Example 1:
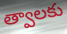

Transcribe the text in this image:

త్వాలకు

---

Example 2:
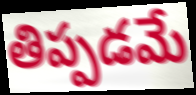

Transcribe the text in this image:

తిప్పడమే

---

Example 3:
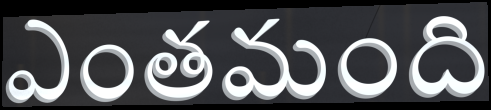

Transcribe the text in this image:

ఎంతమంది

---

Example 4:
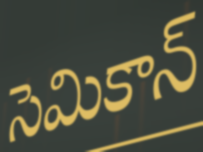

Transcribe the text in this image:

సెమికాన్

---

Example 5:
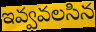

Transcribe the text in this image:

ఇవ్వవలసిన